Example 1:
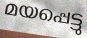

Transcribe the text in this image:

മയപ്പെട്ടു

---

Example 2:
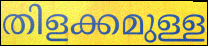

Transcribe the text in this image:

തിളക്കമുള്ള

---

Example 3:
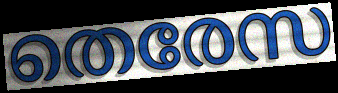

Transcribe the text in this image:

തെരേസ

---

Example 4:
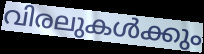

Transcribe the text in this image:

വിരലുകൾക്കും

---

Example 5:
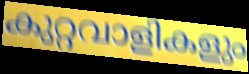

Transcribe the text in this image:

കുറ്റവാളികളും